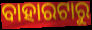
ବାହାରଟାରୁ